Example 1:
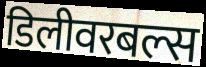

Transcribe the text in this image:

डिलीवरबल्स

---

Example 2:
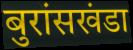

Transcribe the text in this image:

बुरांसखंडा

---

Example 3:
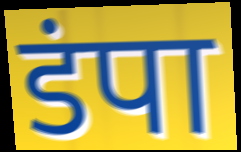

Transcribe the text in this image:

डंपा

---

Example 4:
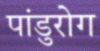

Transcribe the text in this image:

पांडुरोग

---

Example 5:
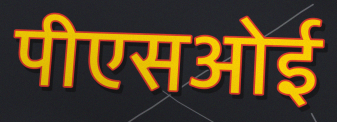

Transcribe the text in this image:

पीएसओई